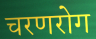
चरणरोग